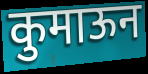
कुमाऊन